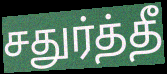
சதுர்த்தீ